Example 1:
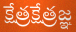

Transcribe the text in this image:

క్షేత్రక్షేత్రజ్ఞ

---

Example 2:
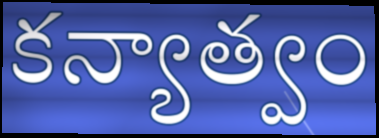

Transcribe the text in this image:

కన్యాత్వం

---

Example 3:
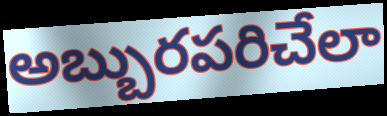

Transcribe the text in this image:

అబ్బురపరిచేలా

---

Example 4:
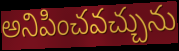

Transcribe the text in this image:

అనిపించవచ్చును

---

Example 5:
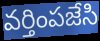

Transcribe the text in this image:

వర్తింపజేసి